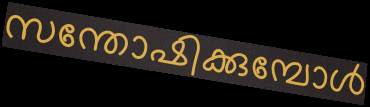
സന്തോഷിക്കുമ്പോൾ